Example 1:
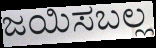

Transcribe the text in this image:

ಜಯಿಸಬಲ್ಲ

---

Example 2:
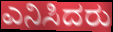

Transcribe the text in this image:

ಎನಿಸಿದರು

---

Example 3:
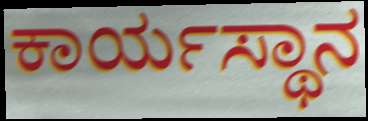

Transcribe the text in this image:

ಕಾರ್ಯಸ್ಥಾನ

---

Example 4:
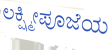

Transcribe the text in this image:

ಲಕ್ಷ್ಮೀಪೂಜೆಯ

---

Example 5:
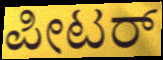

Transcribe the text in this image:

ಪೀಟರ್